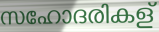
സഹോദരികള്